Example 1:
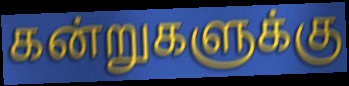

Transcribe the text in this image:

கன்றுகளுக்கு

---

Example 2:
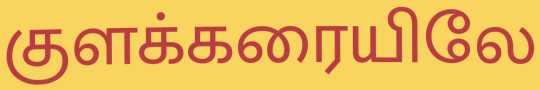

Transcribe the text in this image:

குளக்கரையிலே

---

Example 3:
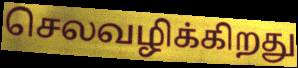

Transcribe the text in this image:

செலவழிக்கிறது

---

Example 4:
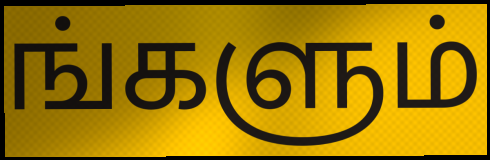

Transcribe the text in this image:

ங்களும்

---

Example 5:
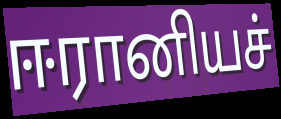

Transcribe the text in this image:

ஈரானியச்